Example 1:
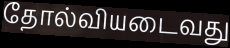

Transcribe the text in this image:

தோல்வியடைவது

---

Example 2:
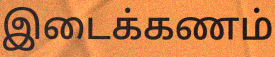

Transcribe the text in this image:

இடைக்கணம்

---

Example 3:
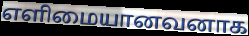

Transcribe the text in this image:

எளிமையானவனாக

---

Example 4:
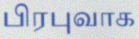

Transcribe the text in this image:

பிரபுவாக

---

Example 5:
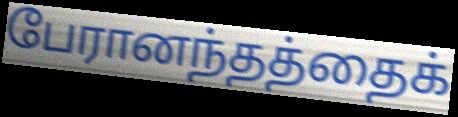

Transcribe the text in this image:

பேரானந்தத்தைக்